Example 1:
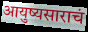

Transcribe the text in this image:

आयुष्यसाराचं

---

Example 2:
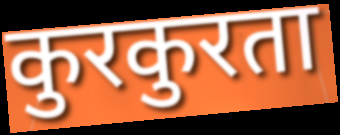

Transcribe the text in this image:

कुरकुरता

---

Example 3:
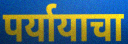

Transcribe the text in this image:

पर्यायाचा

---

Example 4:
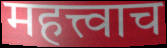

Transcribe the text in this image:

महत्त्वाच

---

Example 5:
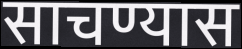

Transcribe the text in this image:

साचण्यास